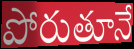
పోరుతూనే